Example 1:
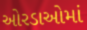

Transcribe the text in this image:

ઓરડાઓમાં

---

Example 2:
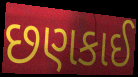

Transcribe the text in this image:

છણકાઈ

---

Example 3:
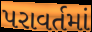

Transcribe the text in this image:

પરાવર્તમાં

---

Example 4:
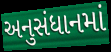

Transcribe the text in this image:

અનુસંધાનમાં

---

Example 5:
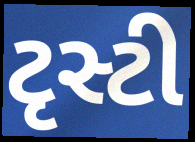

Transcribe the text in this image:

ટૃસ્ટી